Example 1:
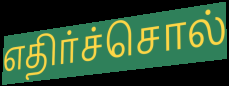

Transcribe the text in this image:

எதிர்ச்சொல்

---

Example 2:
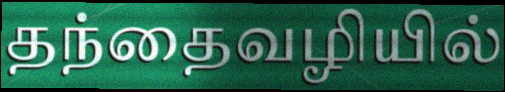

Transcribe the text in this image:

தந்தைவழியில்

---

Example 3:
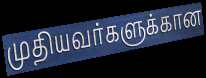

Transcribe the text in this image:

முதியவர்களுக்கான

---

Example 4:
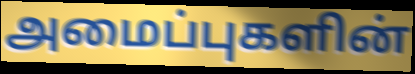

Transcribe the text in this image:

அமைப்புகளின்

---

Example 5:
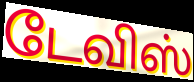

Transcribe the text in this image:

டேவிஸ்